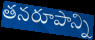
తనరూపాన్ని